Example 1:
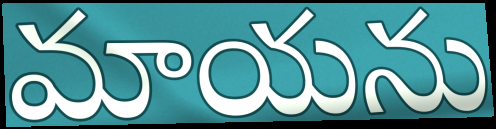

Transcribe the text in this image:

మాయను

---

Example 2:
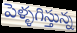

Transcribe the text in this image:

పెళ్ళగిస్తున్న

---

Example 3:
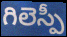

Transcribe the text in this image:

గిలెస్పీ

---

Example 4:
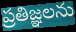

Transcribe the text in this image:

ప్రతిజ్ఞలను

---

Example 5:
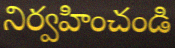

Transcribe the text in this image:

నిర్వహించండి